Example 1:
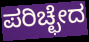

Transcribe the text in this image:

ಪರಿಚ್ಛೇದ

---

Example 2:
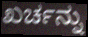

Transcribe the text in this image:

ಖರ್ಚನ್ನು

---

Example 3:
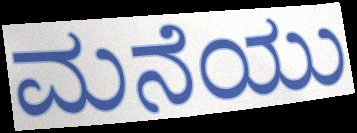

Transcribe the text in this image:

ಮನೆಯು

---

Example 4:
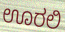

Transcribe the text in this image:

ಊರಲಿ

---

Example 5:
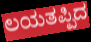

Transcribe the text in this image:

ಲಯತಪ್ಪಿದ